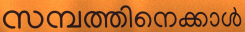
സമ്പത്തിനെക്കാൾ